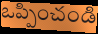
ఒప్పించండి